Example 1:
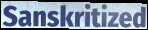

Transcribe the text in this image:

Sanskritized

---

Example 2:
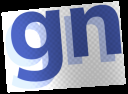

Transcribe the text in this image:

gn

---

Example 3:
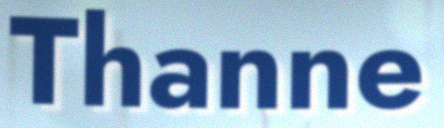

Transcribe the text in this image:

Thanne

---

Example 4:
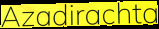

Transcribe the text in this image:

Azadirachta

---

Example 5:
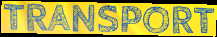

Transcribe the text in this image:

TRANSPORT